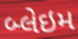
બ્લેઇમ